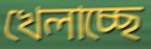
খেলাচ্ছে